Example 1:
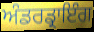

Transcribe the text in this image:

ਅੰਡਰਡ੍ਰਾਇੰਗ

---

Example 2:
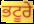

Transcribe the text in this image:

ਭਟੂਰੇ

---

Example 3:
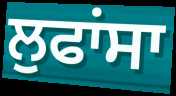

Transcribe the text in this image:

ਲੁਫਾਂਸਾ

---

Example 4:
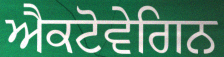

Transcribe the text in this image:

ਐਕਟੋਵੇਗਿਨ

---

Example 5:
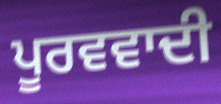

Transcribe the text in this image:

ਪੂਰਵਵਾਦੀ